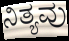
ನಿತ್ಯವು